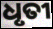
ଧୃତୀ